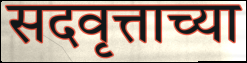
सदवृत्ताच्या